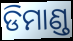
ଡିମାଣ୍ଡ